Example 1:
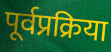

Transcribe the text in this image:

पूर्वप्रक्रिया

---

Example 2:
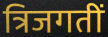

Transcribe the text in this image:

त्रिजगतीं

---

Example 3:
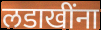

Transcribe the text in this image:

लडाखींना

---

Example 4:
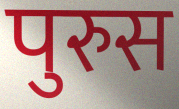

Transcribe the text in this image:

पुरुस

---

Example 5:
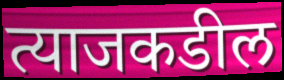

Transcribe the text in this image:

त्याजकडील